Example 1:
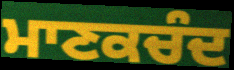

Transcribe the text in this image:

ਮਾਣਕਚੰਦ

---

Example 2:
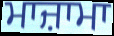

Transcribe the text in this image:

ਮਾਜ਼ਾਮਾ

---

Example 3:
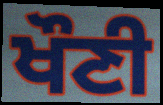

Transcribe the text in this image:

ਖੌਣੀ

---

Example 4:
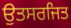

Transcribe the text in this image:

ਉਤਸਰਜਿਤ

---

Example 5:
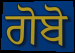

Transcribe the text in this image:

ਗੋਬੋ